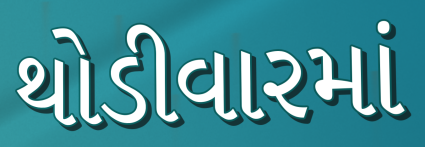
થોડીવારમાં